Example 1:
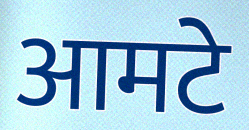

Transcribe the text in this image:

आमटे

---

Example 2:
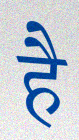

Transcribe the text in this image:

है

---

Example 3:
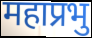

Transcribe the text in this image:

महाप्रभु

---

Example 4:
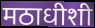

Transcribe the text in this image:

मठाधीशी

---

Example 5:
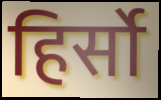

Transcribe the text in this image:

हिर्सो